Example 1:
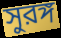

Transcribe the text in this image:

সুরঙ্গ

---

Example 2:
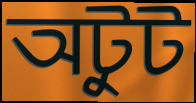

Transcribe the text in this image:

অটুট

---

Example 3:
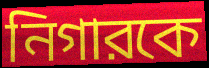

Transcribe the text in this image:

নিগারকে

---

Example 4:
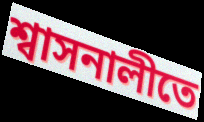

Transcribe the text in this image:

শ্বাসনালীতে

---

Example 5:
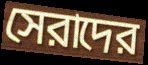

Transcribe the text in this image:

সেরাদের